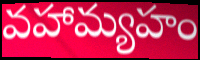
వహామ్యహం